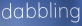
dabbling